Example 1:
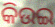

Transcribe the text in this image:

କିଉଇ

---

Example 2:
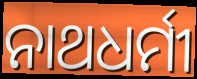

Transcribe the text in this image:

ନାଥଧର୍ମୀ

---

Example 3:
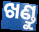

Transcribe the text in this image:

ଖଣ୍ଡୁ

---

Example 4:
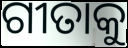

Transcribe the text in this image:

ଗୀତାକୁ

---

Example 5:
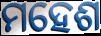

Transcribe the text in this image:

ମହେଶ